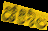
డోకిశీల